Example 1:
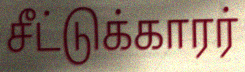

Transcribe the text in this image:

சீட்டுக்காரர்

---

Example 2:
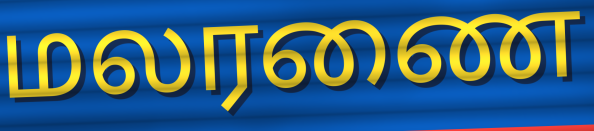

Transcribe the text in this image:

மலரணை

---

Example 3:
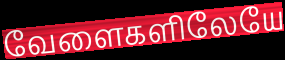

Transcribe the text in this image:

வேளைகளிலேயே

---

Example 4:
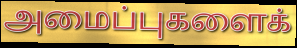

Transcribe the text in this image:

அமைப்புகளைக்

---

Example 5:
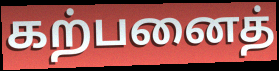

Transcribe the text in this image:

கற்பனைத்